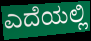
ಎದೆಯಲ್ಲಿ